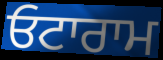
ਓਟਾਰਾਮ